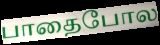
பாதைபோல